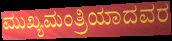
ಮುಖ್ಯಮಂತ್ರಿಯಾದವರ